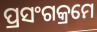
ପ୍ରସଂଗକ୍ରମେ